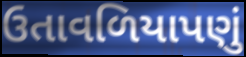
ઉતાવળિયાપણું